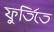
ফুর্তিতে